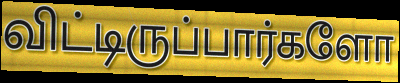
விட்டிருப்பார்களோ